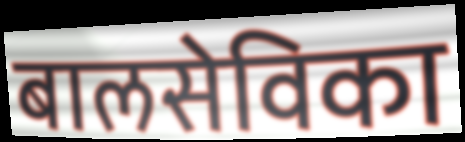
बालसेविका